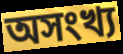
অসংখ্য